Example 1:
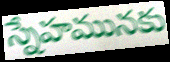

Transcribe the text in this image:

స్నేహమునకు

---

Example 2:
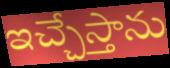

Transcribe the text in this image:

ఇచ్చేస్తాను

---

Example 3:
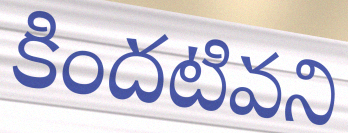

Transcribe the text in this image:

కిందటివని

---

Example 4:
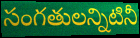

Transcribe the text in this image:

సంగతులన్నిటినీ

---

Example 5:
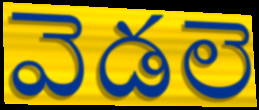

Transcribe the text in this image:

వెడలె